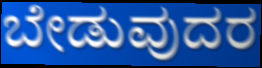
ಬೇಡುವುದರ